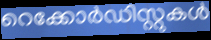
റെക്കോർഡിസ്റ്റുകൾ